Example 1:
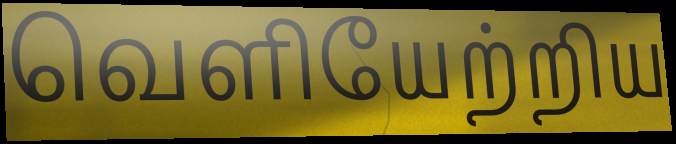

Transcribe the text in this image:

வெளியேற்றிய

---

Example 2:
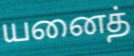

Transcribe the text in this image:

யனைத்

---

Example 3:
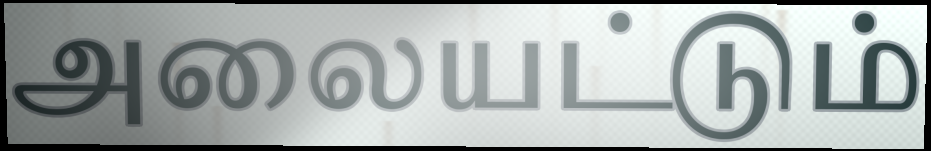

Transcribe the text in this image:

அலையட்டும்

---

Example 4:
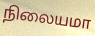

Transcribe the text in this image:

நிலையமா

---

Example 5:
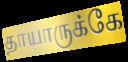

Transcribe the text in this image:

தாயாருக்கே